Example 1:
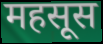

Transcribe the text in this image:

महसूस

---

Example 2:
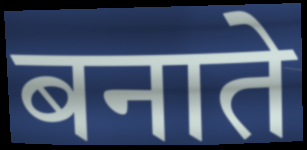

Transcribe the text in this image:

बनाते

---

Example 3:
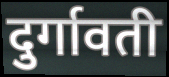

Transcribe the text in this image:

दुर्गावती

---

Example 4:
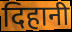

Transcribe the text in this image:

दिहानी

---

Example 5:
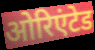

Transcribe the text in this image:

ओरिएंटेड